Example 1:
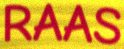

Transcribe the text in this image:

RAAS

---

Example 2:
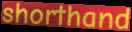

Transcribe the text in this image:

shorthand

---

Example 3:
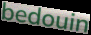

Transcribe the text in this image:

bedouin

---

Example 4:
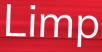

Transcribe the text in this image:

Limp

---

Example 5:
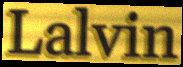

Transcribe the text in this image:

Lalvin